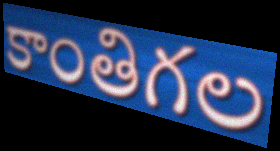
కాంతిగల